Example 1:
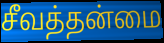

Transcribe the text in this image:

சீவத்தன்மை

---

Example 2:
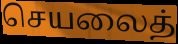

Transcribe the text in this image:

செயலைத்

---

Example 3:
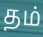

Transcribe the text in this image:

தம்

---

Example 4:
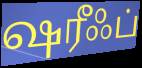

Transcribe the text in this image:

ஷரீஃப்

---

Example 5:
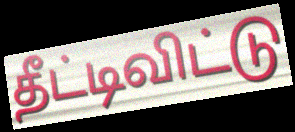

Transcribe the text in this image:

தீட்டிவிட்டு